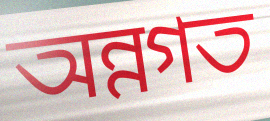
অন্নগত